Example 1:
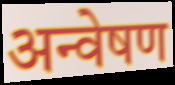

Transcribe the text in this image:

अन्वेषण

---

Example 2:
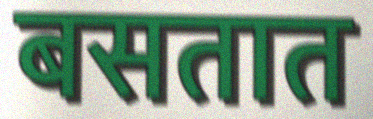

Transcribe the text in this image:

बसतात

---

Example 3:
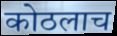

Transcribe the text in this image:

कोठलाच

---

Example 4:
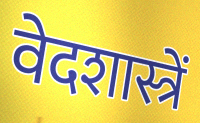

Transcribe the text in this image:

वेदशास्त्रें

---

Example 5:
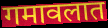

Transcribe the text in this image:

गमावलात